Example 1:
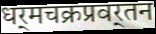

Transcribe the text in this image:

धर्मचक्रप्रवर्तन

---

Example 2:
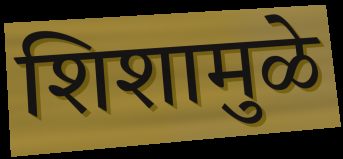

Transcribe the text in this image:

शिशामुळे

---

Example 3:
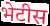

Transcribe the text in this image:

भेटीस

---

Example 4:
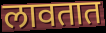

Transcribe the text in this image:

लावतात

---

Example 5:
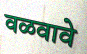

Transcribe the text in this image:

वळवावे